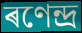
ৰণেন্দ্ৰ